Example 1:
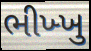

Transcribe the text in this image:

ભીખ્ખુ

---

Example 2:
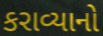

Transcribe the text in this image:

કરાવ્યાનો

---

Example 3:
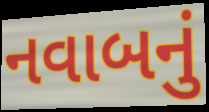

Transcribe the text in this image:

નવાબનું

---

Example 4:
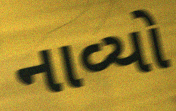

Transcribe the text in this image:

નાવ્યો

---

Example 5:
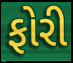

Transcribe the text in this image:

ફોરી